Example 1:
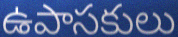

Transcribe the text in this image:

ఉపాసకులు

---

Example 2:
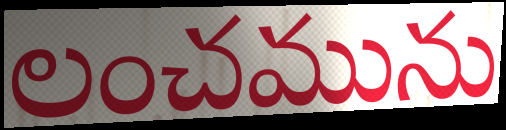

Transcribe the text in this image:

లంచమును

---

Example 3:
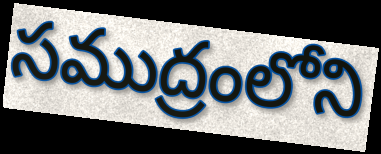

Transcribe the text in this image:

సముద్రంలోని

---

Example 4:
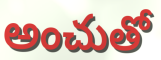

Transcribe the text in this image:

అంచుతో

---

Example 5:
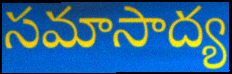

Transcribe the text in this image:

సమాసాద్య